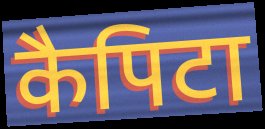
कैपिटा